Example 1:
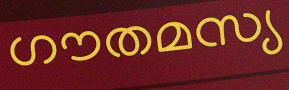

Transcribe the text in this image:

ഗൗതമസ്യ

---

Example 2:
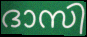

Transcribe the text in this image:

ദാസി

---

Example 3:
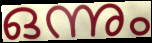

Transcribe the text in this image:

ഒന്നും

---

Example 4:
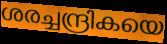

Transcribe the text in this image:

ശരച്ചന്ദ്രികയെ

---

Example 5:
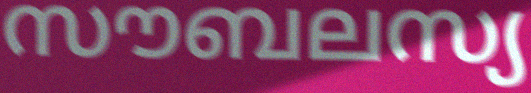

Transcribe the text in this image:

സൗബലസ്യ